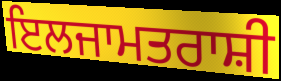
ਇਲਜਾਮਤਰਾਸ਼ੀ